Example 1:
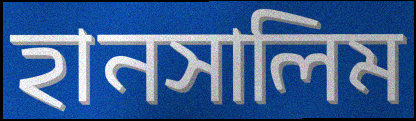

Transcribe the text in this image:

হানসালিম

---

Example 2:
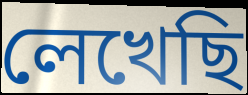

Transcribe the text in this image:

লেখেছি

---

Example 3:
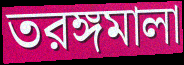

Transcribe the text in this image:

তরঙ্গমালা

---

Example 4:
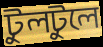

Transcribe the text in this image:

টুলটুলে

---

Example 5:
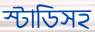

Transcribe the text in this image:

স্টাডিসহ